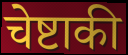
चेष्टाकी